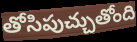
తోసిపుచ్చుతోంది